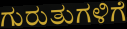
ಗುರುತುಗಳಿಗೆ